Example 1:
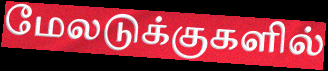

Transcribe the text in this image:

மேலடுக்குகளில்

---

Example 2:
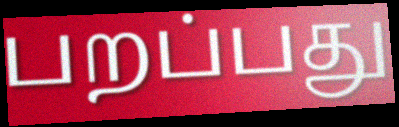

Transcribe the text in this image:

பறப்பது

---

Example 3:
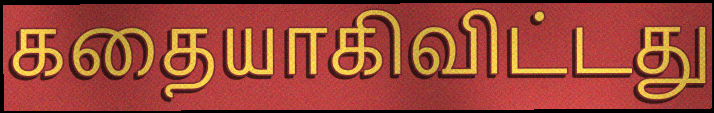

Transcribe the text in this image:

கதையாகிவிட்டது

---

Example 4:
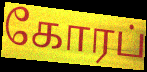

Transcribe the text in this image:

கோரப்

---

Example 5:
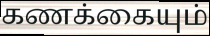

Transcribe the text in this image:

கணக்கையும்